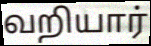
வறியார்